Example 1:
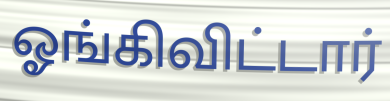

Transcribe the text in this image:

ஓங்கிவிட்டார்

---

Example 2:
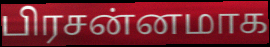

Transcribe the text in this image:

பிரசன்னமாக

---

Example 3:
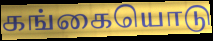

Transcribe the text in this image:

கங்கையொடு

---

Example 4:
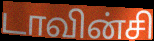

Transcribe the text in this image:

டாவின்சி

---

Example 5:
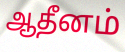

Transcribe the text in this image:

ஆதீனம்